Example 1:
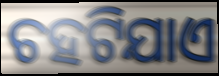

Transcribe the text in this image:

ଚହଟିଯାଏ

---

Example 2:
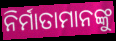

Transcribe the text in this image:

ନିର୍ମାତାମାନଙ୍କୁ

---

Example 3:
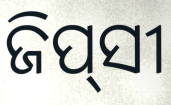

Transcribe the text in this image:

ଜିପ୍‍ସୀ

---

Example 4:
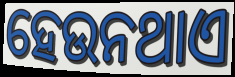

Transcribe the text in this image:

ହେଉନଥାଏ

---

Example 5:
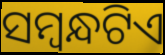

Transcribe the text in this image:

ସମ୍ବନ୍ଧଟିଏ